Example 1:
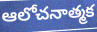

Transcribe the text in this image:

ఆలోచనాత్మక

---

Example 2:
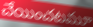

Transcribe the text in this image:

చేయించటమూ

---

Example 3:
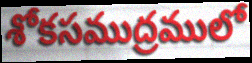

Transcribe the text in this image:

శోకసముద్రములో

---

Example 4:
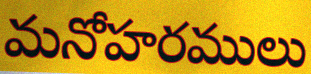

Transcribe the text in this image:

మనోహరములు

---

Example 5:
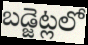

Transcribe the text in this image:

బడ్జెట్లలో